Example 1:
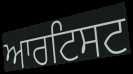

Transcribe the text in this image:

ਆਰਟਿਸਟ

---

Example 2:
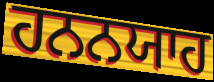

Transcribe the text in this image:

ਹਨਨਯਾਹ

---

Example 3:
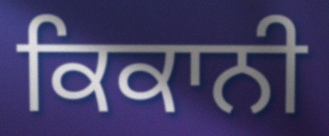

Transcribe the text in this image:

ਕਿਕਾਨੀ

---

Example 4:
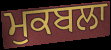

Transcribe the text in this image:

ਮੁਕਬਲਾ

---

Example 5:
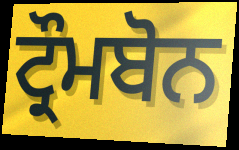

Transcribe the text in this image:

ਟ੍ਰੌਮਬੋਨ